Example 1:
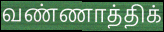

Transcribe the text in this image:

வண்ணாத்திக்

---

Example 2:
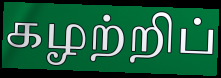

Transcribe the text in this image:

கழற்றிப்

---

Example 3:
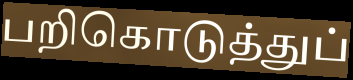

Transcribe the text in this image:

பறிகொடுத்துப்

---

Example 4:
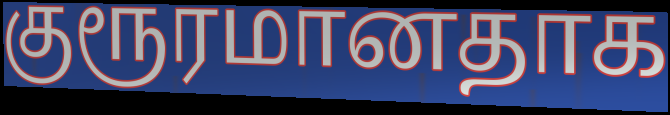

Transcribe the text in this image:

குரூரமானதாக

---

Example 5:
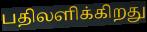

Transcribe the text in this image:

பதிலளிக்கிறது